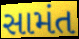
સામંત